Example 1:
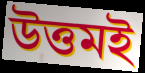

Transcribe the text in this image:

উত্তমই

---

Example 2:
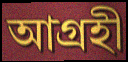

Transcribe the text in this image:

আগ্রহী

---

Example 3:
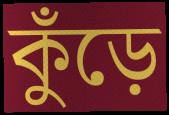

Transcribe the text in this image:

কুঁড়ে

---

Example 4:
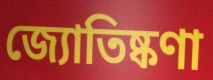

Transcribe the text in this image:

জ্যোতিষ্কণা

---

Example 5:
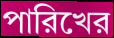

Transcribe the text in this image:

পারিখের